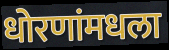
धोरणांमधला